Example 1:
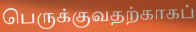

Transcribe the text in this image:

பெருக்குவதற்காகப்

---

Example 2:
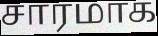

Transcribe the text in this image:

சாரமாக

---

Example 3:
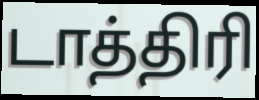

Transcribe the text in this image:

டாத்திரி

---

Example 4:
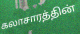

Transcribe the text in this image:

கலாசாரத்தின்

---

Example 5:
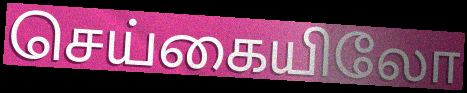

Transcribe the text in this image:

செய்கையிலோ